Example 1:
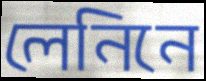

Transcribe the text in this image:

লেনিনে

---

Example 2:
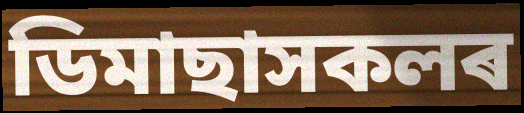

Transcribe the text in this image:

ডিমাছাসকলৰ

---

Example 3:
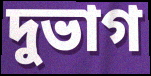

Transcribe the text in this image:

দুভাগ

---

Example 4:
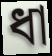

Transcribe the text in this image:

ধা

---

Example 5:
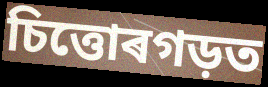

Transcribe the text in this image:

চিত্তোৰগড়ত